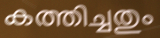
കത്തിച്ചതും